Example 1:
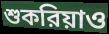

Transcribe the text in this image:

শুকরিয়াও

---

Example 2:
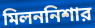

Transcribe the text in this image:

মিলননিশার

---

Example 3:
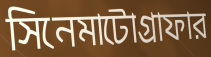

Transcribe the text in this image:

সিনেমাটোগ্রাফার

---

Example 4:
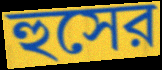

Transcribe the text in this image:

হুসের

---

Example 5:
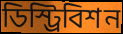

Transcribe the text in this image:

ডিস্ট্রিবিশন